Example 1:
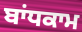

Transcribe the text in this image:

ਬਾਂਧਕਾਮ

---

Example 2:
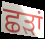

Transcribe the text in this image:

ਛੜਾਂ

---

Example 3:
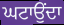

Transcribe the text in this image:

ਘਟਾਉੁਂਦਾ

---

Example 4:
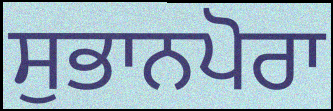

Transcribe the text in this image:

ਸੁਭਾਨਪੋਰਾ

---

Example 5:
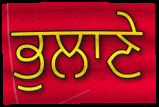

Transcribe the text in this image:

ਭੁਲਾਣੇ